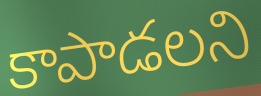
కాపాడలని